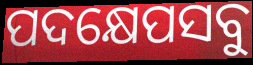
ପଦକ୍ଷେପସବୁ